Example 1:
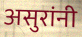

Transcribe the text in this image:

असुरांनी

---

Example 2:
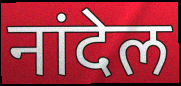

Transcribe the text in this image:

नांदेल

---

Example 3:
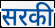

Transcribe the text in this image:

सरकी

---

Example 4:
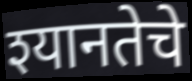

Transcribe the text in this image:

श्यानतेचे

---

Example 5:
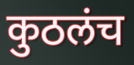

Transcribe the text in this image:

कुठलंच